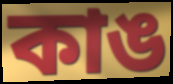
কাঙ